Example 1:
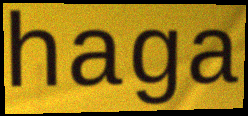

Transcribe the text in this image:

haga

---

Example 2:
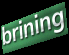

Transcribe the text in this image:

brining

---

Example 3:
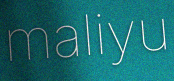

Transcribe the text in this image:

maliyu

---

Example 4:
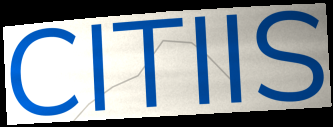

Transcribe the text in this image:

CITIIS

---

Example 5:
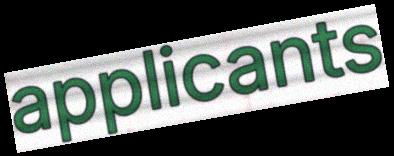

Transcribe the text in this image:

applicants